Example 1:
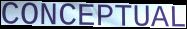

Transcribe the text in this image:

CONCEPTUAL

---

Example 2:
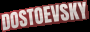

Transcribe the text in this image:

DOSTOEVSKY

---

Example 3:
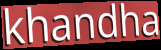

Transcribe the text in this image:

khandha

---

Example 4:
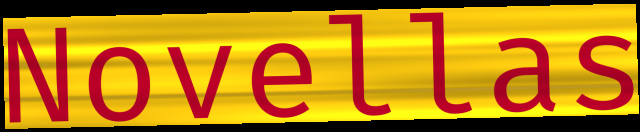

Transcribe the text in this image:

Novellas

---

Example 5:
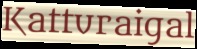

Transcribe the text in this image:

Katturaigal